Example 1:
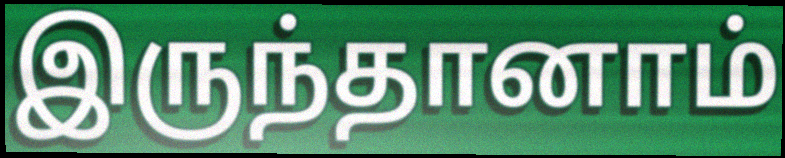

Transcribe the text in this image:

இருந்தானாம்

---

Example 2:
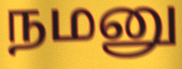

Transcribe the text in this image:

நமனு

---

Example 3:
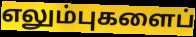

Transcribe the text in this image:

எலும்புகளைப்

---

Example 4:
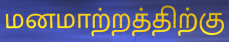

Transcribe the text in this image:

மனமாற்றத்திற்கு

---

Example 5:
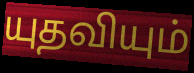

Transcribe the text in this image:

யுதவியும்